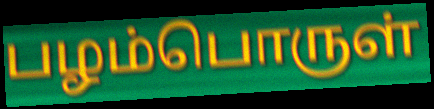
பழம்பொருள்